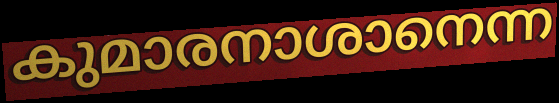
കുമാരനാശാനെന്ന